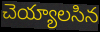
చెయ్యాలసిన